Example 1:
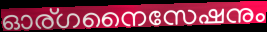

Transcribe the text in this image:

ഓര്ഗനൈസേഷനും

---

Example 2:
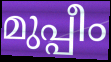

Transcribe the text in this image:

മുപ്പീം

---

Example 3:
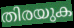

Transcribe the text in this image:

തിരയുക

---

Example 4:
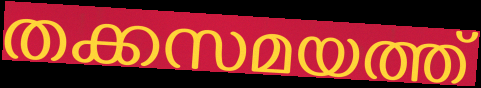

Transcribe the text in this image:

തക്കസമയത്ത്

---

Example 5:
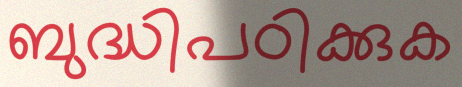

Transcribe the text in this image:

ബുദ്ധിപഠിക്കുക